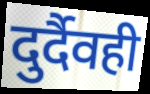
दुर्दैवही